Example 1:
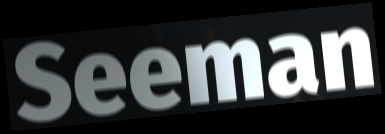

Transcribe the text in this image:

Seeman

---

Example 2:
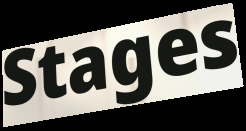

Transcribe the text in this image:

Stages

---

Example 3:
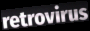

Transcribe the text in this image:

retrovirus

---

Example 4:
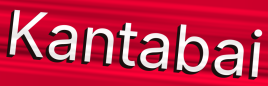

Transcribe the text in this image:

Kantabai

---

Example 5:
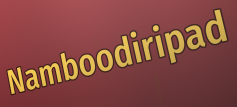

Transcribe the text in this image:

Namboodiripad